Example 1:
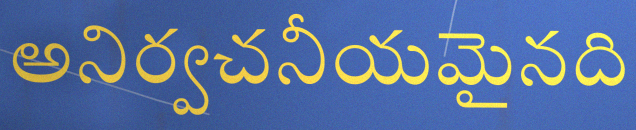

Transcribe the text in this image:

అనిర్వచనీయమైనది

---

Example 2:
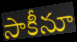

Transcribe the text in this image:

సాకీనూ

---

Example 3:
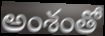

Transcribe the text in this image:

అంశంతో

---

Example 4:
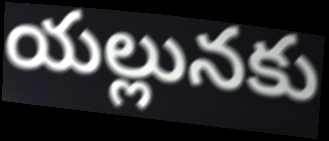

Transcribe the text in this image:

యల్లునకు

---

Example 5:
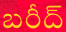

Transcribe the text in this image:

బరీద్